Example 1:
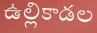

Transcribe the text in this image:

ఉల్లికాడల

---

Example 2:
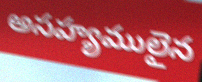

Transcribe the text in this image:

అసహ్యములైన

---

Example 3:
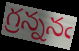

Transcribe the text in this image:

గ్రన్ననఁ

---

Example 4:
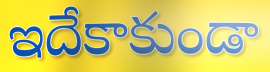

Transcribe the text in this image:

ఇదేకాకుండా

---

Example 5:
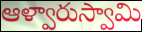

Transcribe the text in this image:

ఆళ్వారుస్వామి